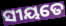
ସୀୟତେ